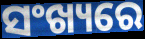
ସଂଖ୍ୟରେ